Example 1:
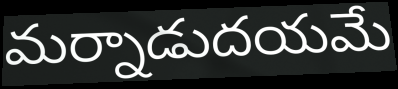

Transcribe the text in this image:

మర్నాడుదయమే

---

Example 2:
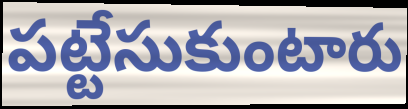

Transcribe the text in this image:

పట్టేసుకుంటారు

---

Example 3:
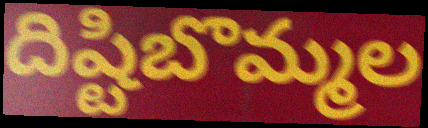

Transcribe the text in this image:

దిష్టిబొమ్మల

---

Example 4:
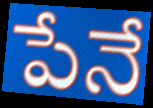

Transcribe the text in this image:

పేనే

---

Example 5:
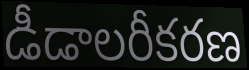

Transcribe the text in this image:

డీడాలరీకరణ